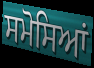
ਸਮੋਸਿਆਂ